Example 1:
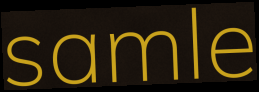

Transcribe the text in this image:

samle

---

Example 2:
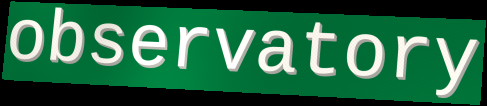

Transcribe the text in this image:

observatory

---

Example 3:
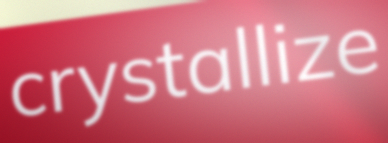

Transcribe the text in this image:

crystallize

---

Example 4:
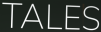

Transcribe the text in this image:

TALES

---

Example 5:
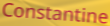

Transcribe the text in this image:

Constantine